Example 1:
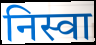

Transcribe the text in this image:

निस्वा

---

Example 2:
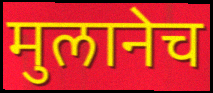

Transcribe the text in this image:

मुलानेच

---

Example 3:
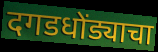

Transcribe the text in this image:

दगडधोंड्याचा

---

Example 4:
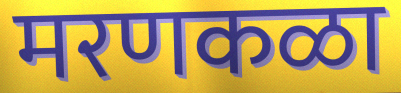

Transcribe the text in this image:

मरणकळा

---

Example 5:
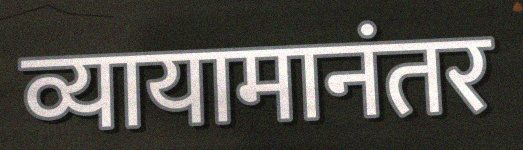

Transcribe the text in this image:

व्यायामानंतर